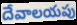
దేవాలయపు